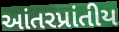
આંતરપ્રાંતીય